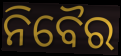
ନିବୈର